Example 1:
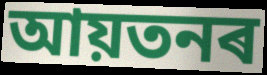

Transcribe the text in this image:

আয়তনৰ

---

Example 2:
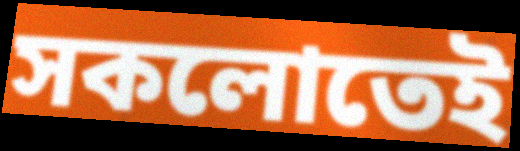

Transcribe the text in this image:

সকলোতেই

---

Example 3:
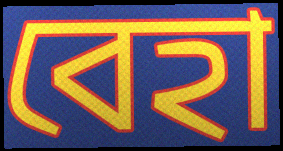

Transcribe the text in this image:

বেহা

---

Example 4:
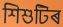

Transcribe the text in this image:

শিশুটিৰ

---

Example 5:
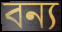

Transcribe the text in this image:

বন্য